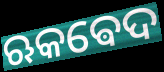
ଋକଵେଦ